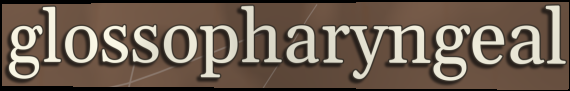
glossopharyngeal